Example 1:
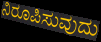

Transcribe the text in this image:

ನಿರೂಪಿಸುವುದು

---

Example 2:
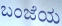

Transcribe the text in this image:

ಬಂಜೆಯ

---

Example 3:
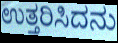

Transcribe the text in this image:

ಉತ್ತರಿಸಿದನು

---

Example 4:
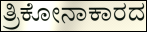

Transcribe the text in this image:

ತ್ರಿಕೋನಾಕಾರದ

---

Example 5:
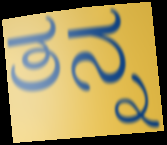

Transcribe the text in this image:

ತನ್ನ